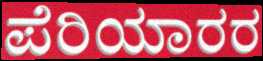
ಪೆರಿಯಾರರ